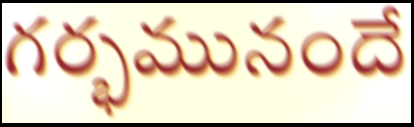
గర్భమునందే